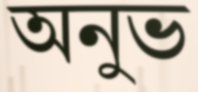
অনুভ